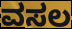
ವಸಲ